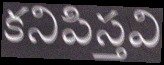
కనిపిస్తవి